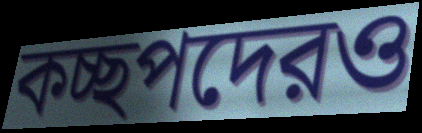
কচ্ছপদেরও